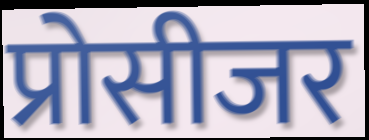
प्रोसीजर